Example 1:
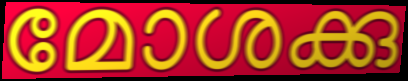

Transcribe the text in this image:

മോശക്കു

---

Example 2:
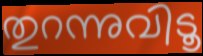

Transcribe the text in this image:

തുറന്നുവിടൂ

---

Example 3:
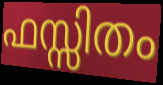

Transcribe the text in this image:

ഫസ്സിതം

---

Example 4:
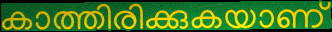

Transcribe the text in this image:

കാത്തിരിക്കുകയാണ്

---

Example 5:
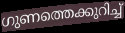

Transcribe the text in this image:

ഗുണത്തെക്കുറിച്ച്